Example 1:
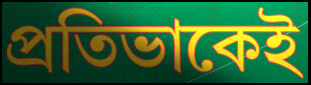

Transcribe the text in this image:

প্রতিভাকেই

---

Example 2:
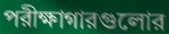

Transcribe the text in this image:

পরীক্ষাগারগুলোর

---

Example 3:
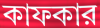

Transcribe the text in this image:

কাফকার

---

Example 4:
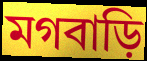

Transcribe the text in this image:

মগবাড়ি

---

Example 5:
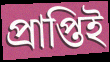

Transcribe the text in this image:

প্রাপ্তিই